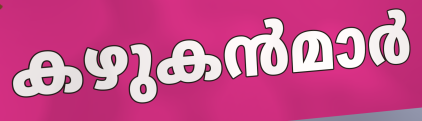
കഴുകൻമാർ